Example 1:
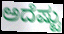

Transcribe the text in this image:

ಅದೆಷ್ಟು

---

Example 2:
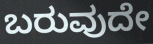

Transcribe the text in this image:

ಬರುವುದೇ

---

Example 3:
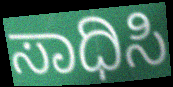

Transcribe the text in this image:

ಸಾಧಿಸಿ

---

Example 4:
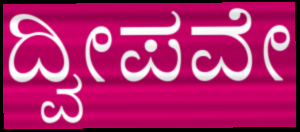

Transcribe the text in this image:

ದ್ವೀಪವೇ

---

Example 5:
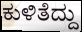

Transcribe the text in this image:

ಕುಳಿತೆದ್ದು